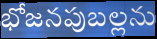
భోజనపుబల్లను